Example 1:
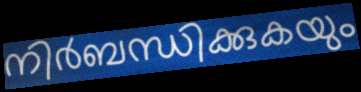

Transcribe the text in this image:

നിർബന്ധിക്കുകയും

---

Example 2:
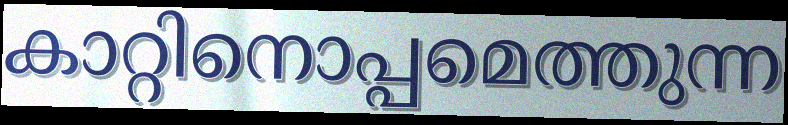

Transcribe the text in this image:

കാറ്റിനൊപ്പമെത്തുന്ന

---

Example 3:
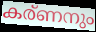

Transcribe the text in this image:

കര്ണനും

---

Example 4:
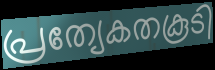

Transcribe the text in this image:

പ്രത്യേകതകൂടി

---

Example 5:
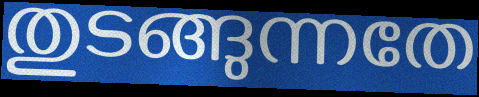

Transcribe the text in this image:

തുടങ്ങുന്നതേ